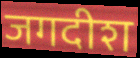
जगदीश